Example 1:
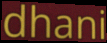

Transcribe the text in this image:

dhani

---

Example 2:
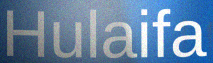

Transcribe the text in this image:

Hulaifa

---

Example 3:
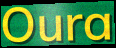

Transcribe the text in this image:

Oura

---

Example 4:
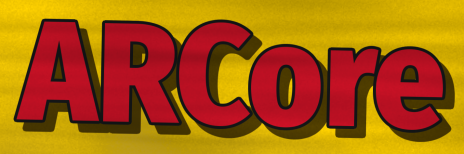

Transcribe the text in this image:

ARCore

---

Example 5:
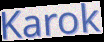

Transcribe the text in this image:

Karok